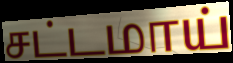
சட்டமாய்